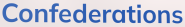
Confederations